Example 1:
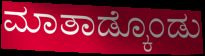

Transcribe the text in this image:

ಮಾತಾಡ್ಕೊಂಡು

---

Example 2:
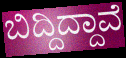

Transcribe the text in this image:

ಬಿದ್ದಿದ್ದಾವೆ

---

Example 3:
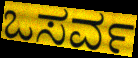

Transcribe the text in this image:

ಒಸರ್ವ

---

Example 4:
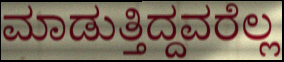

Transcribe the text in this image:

ಮಾಡುತ್ತಿದ್ದವರೆಲ್ಲ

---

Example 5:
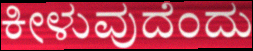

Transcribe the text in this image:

ಕೀಳುವುದೆಂದು